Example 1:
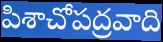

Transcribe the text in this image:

పిశాచోపద్రవాది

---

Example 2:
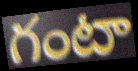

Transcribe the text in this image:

గంటా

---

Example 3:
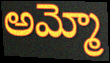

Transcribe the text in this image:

అమ్మో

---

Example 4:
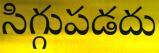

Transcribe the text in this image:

సిగ్గుపడదు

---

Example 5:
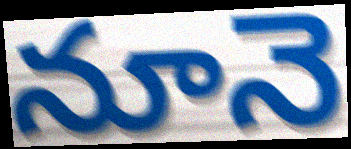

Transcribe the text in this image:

నూనె